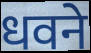
धवने